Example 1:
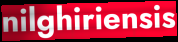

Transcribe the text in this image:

nilghiriensis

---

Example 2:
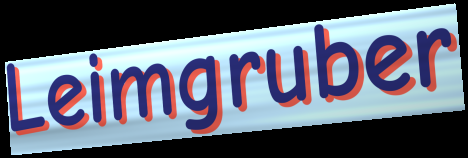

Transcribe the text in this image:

Leimgruber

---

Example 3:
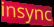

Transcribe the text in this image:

insync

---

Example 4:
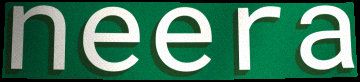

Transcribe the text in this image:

neera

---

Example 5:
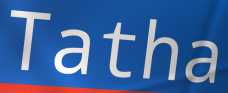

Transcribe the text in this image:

Tatha